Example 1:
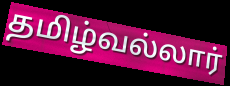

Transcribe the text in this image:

தமிழ்வல்லார்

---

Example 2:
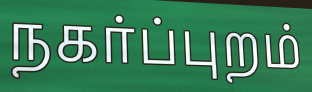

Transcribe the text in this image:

நகர்ப்புறம்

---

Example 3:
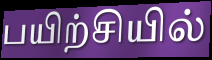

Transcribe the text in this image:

பயிற்சியில்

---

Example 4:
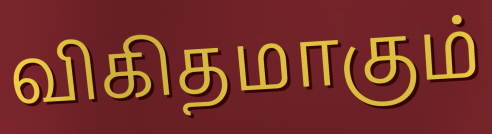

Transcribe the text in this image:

விகிதமாகும்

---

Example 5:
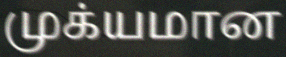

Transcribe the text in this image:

முக்யமான